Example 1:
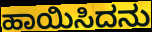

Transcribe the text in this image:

ಹಾಯಿಸಿದನು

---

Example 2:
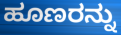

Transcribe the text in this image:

ಹೂಣರನ್ನು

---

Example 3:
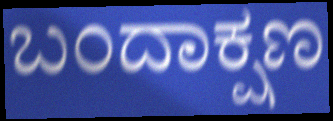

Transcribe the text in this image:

ಬಂದಾಕ್ಷಣ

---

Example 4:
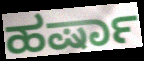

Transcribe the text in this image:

ಹರ್ಷಾ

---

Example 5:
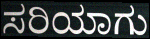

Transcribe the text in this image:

ಸರಿಯಾಗು